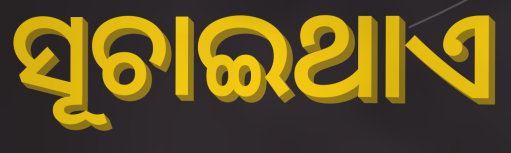
ସୂଚାଇଥାଏ